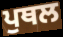
ਪੁਥਲ